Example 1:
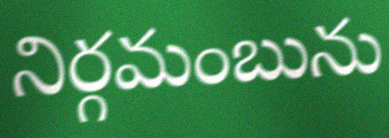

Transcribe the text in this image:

నిర్గమంబును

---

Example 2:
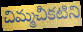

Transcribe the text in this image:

చిమ్మచీకటిని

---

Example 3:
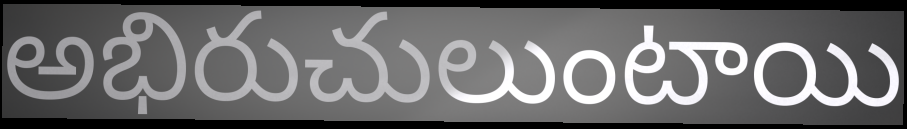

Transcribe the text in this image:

అభిరుచులుంటాయి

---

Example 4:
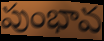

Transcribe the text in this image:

పుంభావ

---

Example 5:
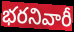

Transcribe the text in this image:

భరనివారీ